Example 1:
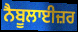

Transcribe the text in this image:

ਨੈਬੂਲਾਈਜ਼ਰ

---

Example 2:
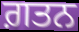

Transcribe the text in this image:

ਗ਼ਤਨ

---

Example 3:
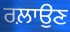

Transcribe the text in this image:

ਰਲ਼ਾਉਣ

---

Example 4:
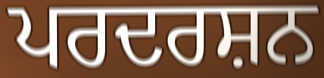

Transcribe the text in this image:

ਪਰਦਰਸ਼ਨ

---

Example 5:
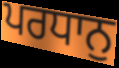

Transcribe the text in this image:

ਪਰਧਾਨੁ